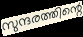
സുന്ദരത്തിന്റെ